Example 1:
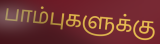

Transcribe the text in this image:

பாம்புகளுக்கு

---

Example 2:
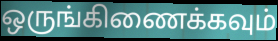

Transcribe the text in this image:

ஒருங்கிணைக்கவும்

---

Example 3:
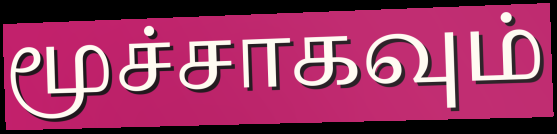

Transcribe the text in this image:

மூச்சாகவும்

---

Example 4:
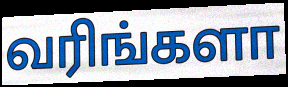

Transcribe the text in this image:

வரிங்களா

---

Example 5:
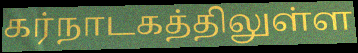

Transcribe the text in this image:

கர்நாடகத்திலுள்ள